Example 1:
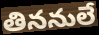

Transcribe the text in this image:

తిననులే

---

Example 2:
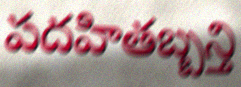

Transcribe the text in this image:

పదహితబ్బన్తి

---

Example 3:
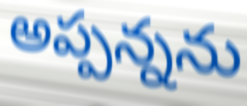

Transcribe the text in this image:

అప్పన్నను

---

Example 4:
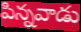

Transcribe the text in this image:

పిన్నవాడు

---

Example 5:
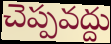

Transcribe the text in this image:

చెప్పవద్దు